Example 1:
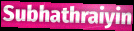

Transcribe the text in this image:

Subhathraiyin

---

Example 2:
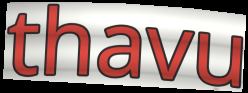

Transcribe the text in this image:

thavu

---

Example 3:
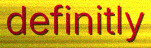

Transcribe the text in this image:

definitly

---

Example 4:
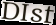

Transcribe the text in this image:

DIst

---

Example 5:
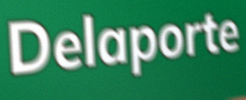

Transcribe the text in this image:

Delaporte